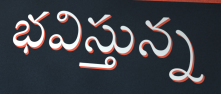
భవిస్తున్న